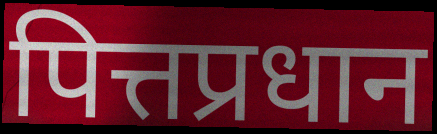
पित्तप्रधान